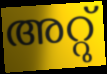
അറ്റു്